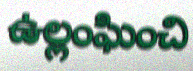
ఉల్లంఘించి